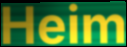
Heim